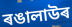
ৰঙালাউৰ